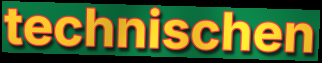
technischen